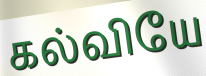
கல்வியே